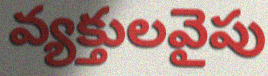
వ్యక్తులవైపు